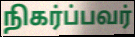
நிகர்ப்பவர்